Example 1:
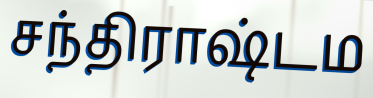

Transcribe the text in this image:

சந்திராஷ்டம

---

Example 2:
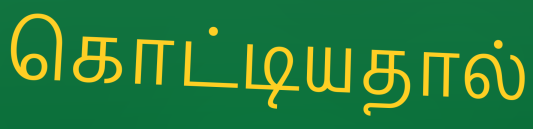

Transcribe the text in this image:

கொட்டியதால்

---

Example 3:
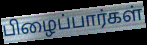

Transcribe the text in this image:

பிழைப்பார்கள்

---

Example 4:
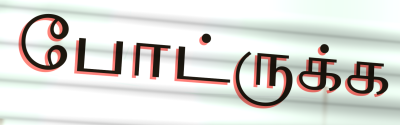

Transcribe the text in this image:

போட்ருக்க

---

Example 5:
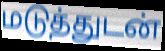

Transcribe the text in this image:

மடுத்துடன்